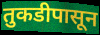
तुकडीपासून